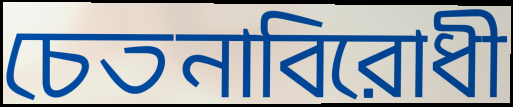
চেতনাবিরোধী